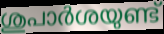
ശുപാർശയുണ്ട്